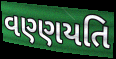
વણ્ણયતિ